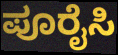
ಪೂರೈಸಿ